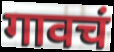
गावचं